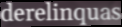
derelinquas